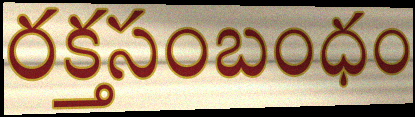
రక్తసంబంధం